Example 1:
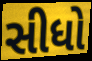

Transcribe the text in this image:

સીધો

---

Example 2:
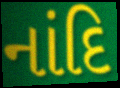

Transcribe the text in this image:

નાંદિ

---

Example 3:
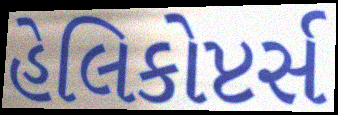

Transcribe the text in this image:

હેલિકોપ્ટર્સ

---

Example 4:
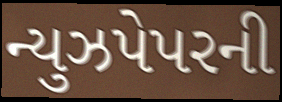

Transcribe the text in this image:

ન્યુઝપેપરની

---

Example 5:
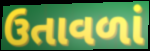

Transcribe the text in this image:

ઉતાવળાં